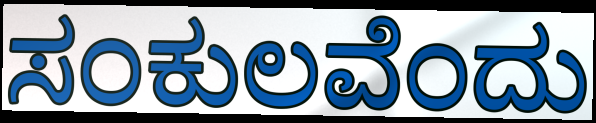
ಸಂಕುಲವೆಂದು